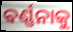
ଵର୍ଣ୍ଣନାକୁ